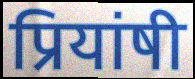
प्रियांषी